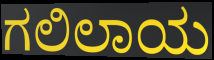
ಗಲಿಲಾಯ